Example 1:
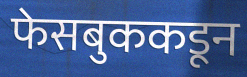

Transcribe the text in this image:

फेसबुककडून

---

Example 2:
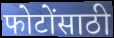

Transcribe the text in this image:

फोटोंसाठी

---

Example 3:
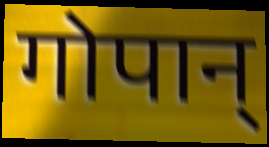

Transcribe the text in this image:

गोपान्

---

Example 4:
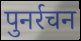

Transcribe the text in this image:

पुनर्रचन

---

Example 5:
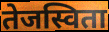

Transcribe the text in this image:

तेजस्विता